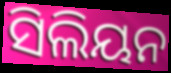
ସିଲିୟନ